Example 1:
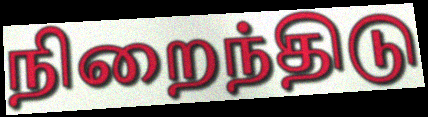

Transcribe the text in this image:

நிறைந்திடு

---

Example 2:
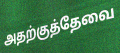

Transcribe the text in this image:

அதற்குத்தேவை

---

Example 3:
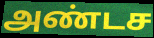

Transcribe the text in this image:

அண்டச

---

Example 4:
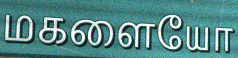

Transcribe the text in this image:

மகளையோ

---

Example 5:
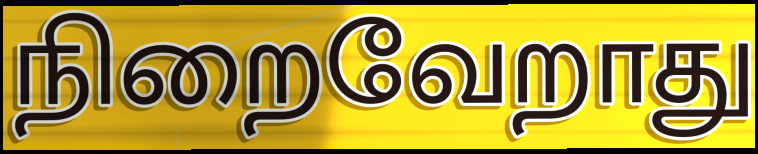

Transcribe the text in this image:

நிறைவேறாது